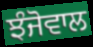
ਝੰਜੋਵਾਲ